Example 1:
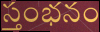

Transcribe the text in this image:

స్తంభనం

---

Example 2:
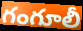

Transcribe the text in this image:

గంగూలీ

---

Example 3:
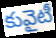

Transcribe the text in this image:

కువైటీ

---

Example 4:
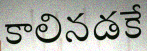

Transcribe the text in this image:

కాలినడకే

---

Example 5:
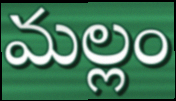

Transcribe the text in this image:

మల్లం